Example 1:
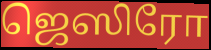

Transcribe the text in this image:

ஜெஸிரோ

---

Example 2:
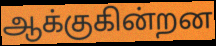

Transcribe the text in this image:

ஆக்குகின்றன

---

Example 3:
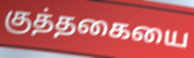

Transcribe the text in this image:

குத்தகையை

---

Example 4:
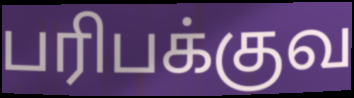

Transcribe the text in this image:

பரிபக்குவ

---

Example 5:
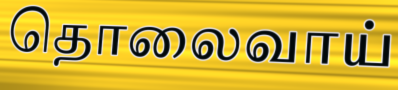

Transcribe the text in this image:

தொலைவாய்